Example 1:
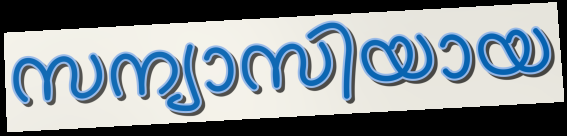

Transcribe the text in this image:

സന്യാസിയായ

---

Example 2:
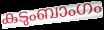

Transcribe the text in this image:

കുടുംബാംഗം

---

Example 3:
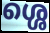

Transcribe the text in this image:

ശ്ശെ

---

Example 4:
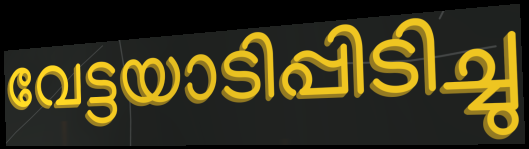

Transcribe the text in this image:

വേട്ടയാടിപ്പിടിച്ചു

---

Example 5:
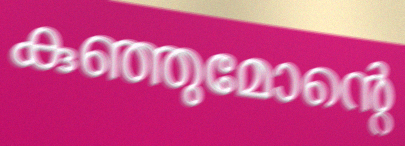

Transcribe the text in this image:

കുഞ്ഞുമോന്റെ